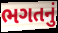
ભગતનું